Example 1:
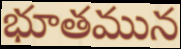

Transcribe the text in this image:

భూతమున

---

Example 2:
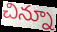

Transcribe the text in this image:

చిన్నూ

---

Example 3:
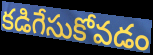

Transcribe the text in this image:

కడిగేసుకోవడం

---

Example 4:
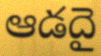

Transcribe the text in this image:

ఆడదై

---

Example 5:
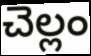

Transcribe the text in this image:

చెల్లం